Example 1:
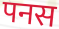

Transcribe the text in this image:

पनस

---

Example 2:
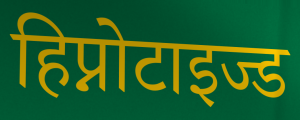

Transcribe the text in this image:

हिप्नोटाइज्ड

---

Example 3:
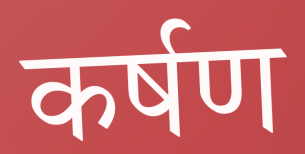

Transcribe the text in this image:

कर्षण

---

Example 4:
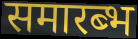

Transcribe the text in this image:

समारब्भ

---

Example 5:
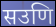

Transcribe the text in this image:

सउणि